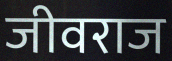
जीवराज